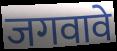
जगवावे